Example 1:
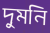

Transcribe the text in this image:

দুমনি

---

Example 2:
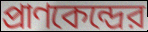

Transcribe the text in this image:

প্রাণকেন্দ্রের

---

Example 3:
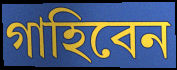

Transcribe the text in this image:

গাহিবেন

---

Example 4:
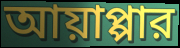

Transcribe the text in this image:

আয়াপ্পার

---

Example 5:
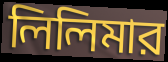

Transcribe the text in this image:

লিলিমার